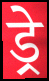
ड्रे